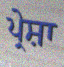
ਪ੍ਰੇਸ਼ਾ